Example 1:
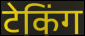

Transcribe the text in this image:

टेकिंग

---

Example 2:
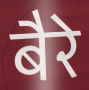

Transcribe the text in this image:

बैरे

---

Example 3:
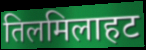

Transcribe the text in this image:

तिलमिलाहट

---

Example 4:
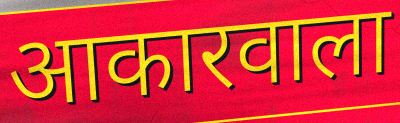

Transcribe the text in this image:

आकारवाला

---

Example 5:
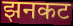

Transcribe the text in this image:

झनकट